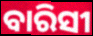
ବାରିସୀ